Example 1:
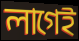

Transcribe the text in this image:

লাগেই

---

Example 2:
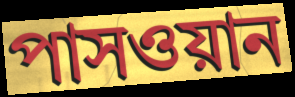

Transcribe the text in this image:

পাসওয়ান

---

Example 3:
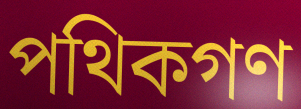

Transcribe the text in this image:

পথিকগণ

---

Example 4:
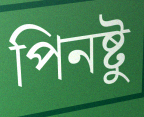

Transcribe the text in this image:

পিনষ্টু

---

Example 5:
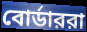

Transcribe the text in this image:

বোর্ডাররা